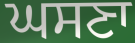
ਘਸਣਾ